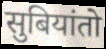
सुबियांतो